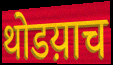
थोडय़ाच